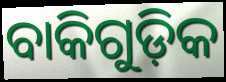
ବାକିଗୁଡ଼ିକ